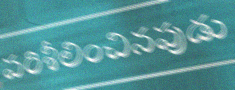
పరిశీలించినపుడు